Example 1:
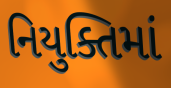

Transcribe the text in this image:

નિયુક્તિમાં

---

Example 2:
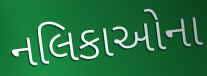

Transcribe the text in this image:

નલિકાઓના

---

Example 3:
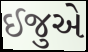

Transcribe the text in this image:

ઈજુએ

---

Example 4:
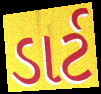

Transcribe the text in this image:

ડાર્ટ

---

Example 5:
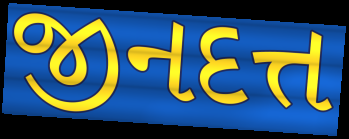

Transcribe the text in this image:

જીનદત્ત